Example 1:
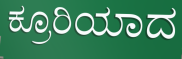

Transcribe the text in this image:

ಕ್ರೂರಿಯಾದ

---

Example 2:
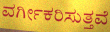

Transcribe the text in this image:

ವರ್ಗೀಕರಿಸುತ್ತವೆ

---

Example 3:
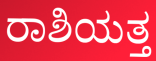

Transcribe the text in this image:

ರಾಶಿಯತ್ತ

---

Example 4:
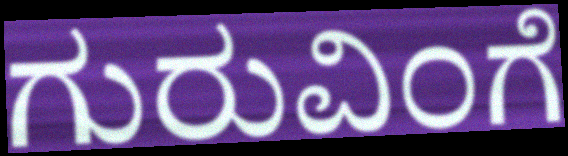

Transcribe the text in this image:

ಗುರುವಿಂಗೆ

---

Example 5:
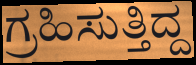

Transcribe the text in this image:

ಗ್ರಹಿಸುತ್ತಿದ್ದ